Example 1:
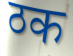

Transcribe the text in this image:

ठक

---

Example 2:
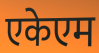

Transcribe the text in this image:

एकेएम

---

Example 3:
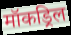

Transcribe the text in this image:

मॉकड्रिल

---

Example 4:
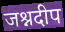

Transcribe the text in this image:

जश्नदीप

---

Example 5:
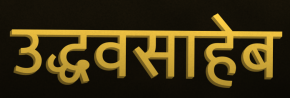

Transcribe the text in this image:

उद्धवसाहेब